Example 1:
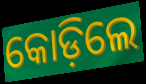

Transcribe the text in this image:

କୋଡ଼ିଲେ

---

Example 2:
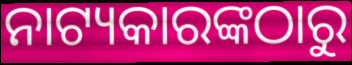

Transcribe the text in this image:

ନାଟ୍ୟକାରଙ୍କଠାରୁ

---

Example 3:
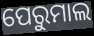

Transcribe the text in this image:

ପେରୁମାଲ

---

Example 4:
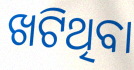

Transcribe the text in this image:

ଖଟିଥିବା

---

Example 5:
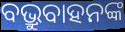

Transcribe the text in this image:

ବଭ୍ରୁବାହନଙ୍କ